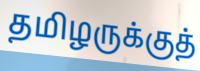
தமிழருக்குத்